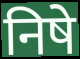
निषे